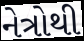
નેત્રોથી